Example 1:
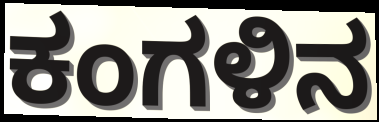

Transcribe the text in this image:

ಕಂಗಳಿನ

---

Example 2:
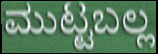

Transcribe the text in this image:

ಮುಟ್ಟಬಲ್ಲ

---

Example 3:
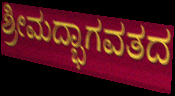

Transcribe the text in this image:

ಶ್ರೀಮದ್ಭಾಗವತದ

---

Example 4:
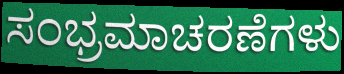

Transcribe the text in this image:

ಸಂಭ್ರಮಾಚರಣೆಗಳು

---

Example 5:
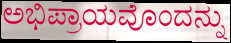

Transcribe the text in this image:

ಅಭಿಪ್ರಾಯವೊಂದನ್ನು